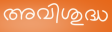
അവിശുദ്ധ